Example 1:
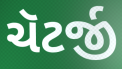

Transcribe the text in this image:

ચૅટર્જી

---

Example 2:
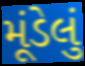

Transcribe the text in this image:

મૂંડેલું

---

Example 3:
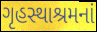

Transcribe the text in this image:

ગૃહસ્થાશ્રમનાં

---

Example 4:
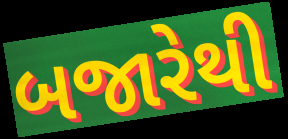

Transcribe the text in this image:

બજારેથી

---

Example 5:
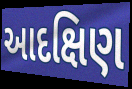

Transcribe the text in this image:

આદક્ષિણ